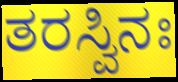
ತರಸ್ವಿನಃ